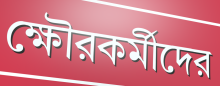
ক্ষৌরকর্মীদের